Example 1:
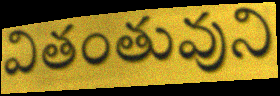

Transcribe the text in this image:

వితంతువుని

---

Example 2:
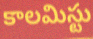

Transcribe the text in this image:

కాలమిస్టు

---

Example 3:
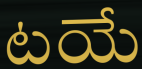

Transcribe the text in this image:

టయే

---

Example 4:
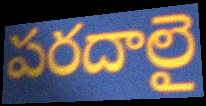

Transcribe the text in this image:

పరదాలై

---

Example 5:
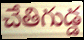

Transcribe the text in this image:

చేతిగుడ్డ